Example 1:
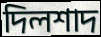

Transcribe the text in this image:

দিলশাদ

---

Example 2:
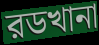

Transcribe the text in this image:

রডখানা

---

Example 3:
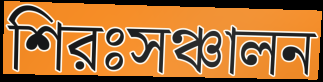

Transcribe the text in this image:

শিরঃসঞ্চালন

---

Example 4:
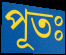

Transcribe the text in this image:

পূতঃ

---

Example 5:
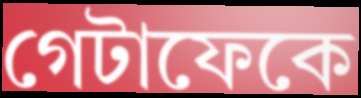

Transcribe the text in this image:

গেটাফেকে